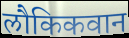
लौकिकवान